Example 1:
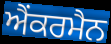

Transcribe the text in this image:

ਐਂਕਰਮੈਨ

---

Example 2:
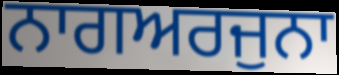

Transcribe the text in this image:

ਨਾਗਅਰਜੁਨਾ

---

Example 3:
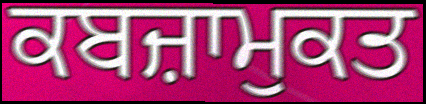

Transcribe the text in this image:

ਕਬਜ਼ਾਮੁਕਤ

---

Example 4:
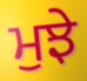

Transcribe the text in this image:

ਮੁਝੇ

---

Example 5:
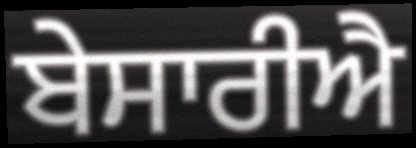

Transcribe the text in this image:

ਬੇਸਾਰੀਐ